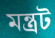
মন্ত্রট